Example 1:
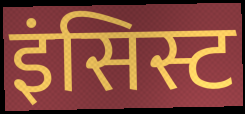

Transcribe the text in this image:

इंसिस्ट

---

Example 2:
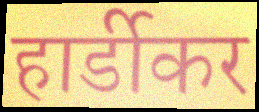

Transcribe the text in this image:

हार्डीकर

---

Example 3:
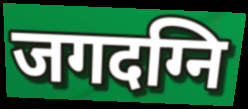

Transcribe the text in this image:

जगदग्नि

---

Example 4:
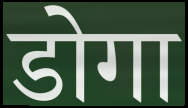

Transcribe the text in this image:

डोगा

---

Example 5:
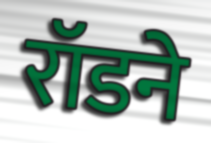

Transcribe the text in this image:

रॉडने